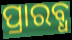
ପ୍ରାରବ୍ଧ